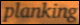
planking